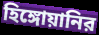
হিঙ্গোয়ানির